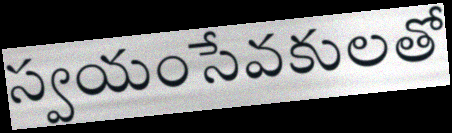
స్వయంసేవకులతో